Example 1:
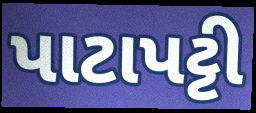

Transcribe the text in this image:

પાટાપટ્ટી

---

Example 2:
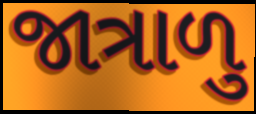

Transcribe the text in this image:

જાત્રાળુ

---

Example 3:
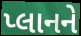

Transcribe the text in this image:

પ્લાનને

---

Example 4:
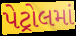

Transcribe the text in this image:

પેટ્રોલમાં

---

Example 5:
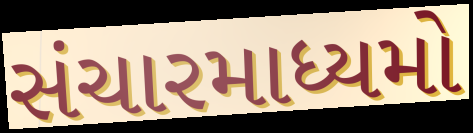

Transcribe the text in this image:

સંચારમાધ્યમો